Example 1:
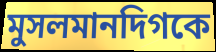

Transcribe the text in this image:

মুসলমানদিগকে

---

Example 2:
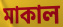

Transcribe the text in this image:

মাকাল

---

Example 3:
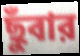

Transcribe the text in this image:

ছুঁবার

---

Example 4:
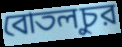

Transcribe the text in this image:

বোতলচুর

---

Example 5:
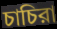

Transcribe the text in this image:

চাচিরা